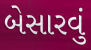
બેસારવું